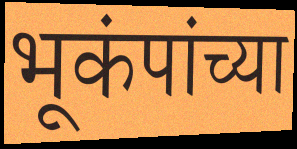
भूकंपांच्या